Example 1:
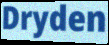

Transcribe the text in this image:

Dryden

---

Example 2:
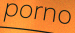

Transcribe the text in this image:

porno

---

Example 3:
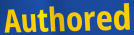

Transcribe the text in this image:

Authored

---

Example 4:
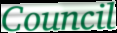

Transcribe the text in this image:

Council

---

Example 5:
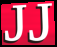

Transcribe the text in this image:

JJ